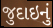
જુદાઇનું